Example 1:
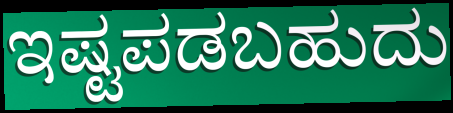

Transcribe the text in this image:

ಇಷ್ಟಪಡಬಹುದು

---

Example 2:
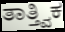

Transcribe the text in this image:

ತಾತ್ತ್ವಿಕ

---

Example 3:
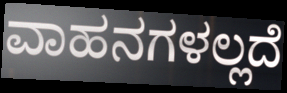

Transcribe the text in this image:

ವಾಹನಗಳಲ್ಲದೆ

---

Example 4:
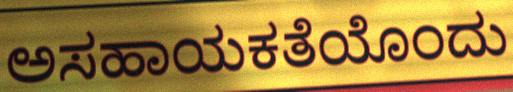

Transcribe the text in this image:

ಅಸಹಾಯಕತೆಯೊಂದು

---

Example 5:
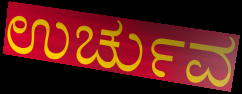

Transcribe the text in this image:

ಉರ್ಚುವ